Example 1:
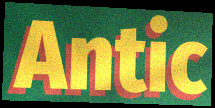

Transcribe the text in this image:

Antic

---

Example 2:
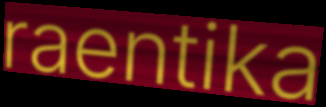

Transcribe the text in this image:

raentika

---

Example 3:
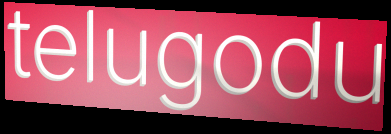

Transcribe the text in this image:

telugodu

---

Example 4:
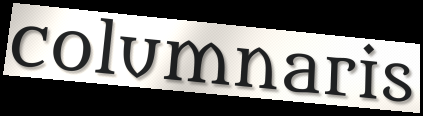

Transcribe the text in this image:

columnaris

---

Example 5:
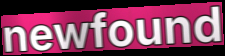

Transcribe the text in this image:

newfound